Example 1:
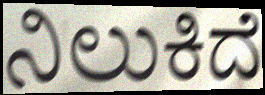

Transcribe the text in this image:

ನಿಲುಕಿದೆ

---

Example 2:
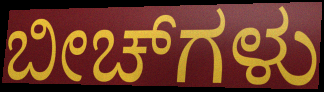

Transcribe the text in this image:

ಬೀಚ್‌ಗಳು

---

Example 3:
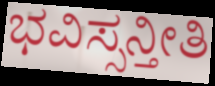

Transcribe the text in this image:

ಭವಿಸ್ಸನ್ತೀತಿ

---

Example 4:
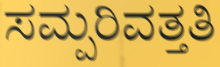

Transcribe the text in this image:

ಸಮ್ಪರಿವತ್ತತಿ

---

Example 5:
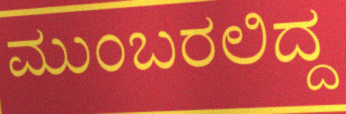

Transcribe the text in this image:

ಮುಂಬರಲಿದ್ದ